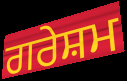
ਗਰੇਸ਼ਮ